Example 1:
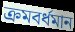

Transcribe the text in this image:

ক্ৰমবৰ্ধমান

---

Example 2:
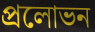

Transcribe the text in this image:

প্ৰলোভন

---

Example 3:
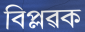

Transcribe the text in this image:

বিপ্লৱক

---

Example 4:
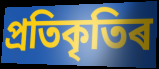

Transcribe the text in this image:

প্ৰতিকৃতিৰ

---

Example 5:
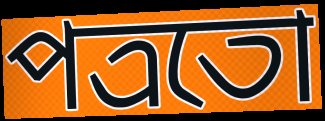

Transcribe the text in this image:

পত্ৰতো